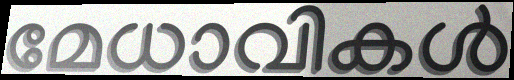
മേധാവികൾ